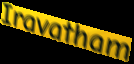
Iravatham